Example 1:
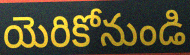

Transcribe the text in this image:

యెరికోనుండి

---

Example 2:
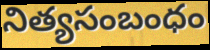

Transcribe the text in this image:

నిత్యసంబంధం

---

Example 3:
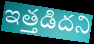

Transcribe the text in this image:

ఇత్తడిదని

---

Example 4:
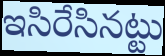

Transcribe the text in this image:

ఇసిరేసినట్టు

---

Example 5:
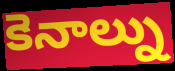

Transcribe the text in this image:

కెనాల్ను